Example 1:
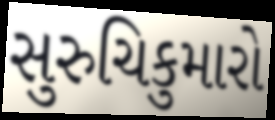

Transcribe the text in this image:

સુરુચિકુમારો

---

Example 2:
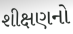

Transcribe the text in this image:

શીક્ષણનો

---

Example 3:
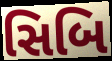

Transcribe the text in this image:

સિબિ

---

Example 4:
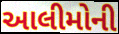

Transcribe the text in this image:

આલીમોની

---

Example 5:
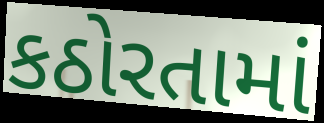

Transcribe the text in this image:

કઠોરતામાં